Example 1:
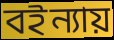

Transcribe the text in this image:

বইন্যায়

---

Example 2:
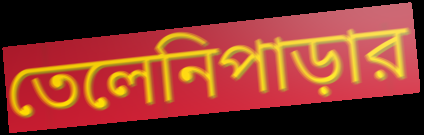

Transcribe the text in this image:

তেলেনিপাড়ার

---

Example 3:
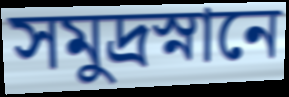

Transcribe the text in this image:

সমুদ্রস্নানে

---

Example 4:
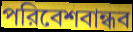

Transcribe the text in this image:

পরিবেশবান্ধব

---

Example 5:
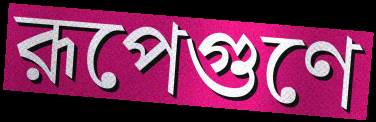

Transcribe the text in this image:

রূপেগুণে